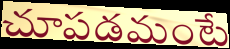
చూపడమంటే